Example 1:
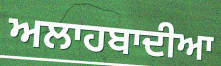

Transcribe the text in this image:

ਅਲਾਹਬਾਦੀਆ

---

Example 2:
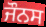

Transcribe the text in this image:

ਜੌਨਸ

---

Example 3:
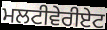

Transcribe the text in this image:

ਮਲਟੀਵੇਰੀਏਟ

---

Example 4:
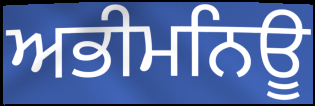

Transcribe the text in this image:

ਅਭੀਮਨਿਊ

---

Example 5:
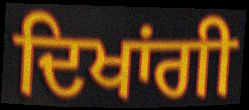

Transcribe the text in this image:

ਦਿਖਾਂਗੀ